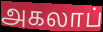
அகலாப்